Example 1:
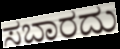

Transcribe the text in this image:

ಸಬಾರದು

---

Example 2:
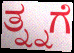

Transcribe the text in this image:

ತ್ನ್ನಗೆ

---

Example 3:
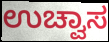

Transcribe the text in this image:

ಉಚ್ವಾಸ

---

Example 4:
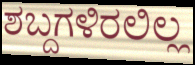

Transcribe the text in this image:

ಶಬ್ದಗಳಿರಲಿಲ್ಲ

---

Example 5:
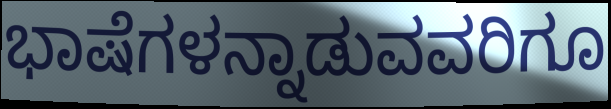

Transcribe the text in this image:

ಭಾಷೆಗಳನ್ನಾಡುವವರಿಗೂ